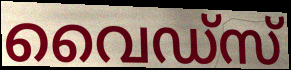
വൈഡ്സ്